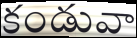
కండువా